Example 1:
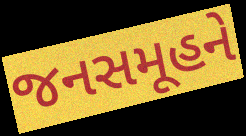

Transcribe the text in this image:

જનસમૂહને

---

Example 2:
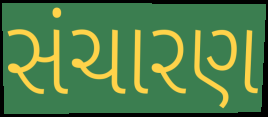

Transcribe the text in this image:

સંચારણ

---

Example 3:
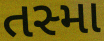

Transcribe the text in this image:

તસ્મા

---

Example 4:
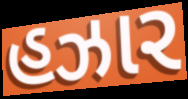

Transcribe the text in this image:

હઝાર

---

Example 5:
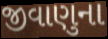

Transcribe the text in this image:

જીવાણુના